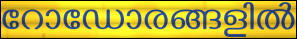
റോഡോരങ്ങളിൽ